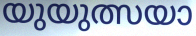
യുയുത്സയാ